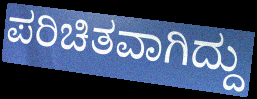
ಪರಿಚಿತವಾಗಿದ್ದು